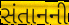
સંતાનની